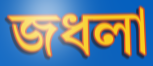
জধলা